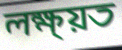
লক্ষ্য়ত